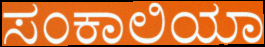
ಸಂಕಾಲಿಯಾ